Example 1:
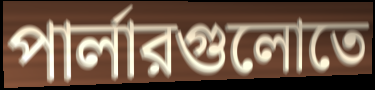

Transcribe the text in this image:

পার্লারগুলোতে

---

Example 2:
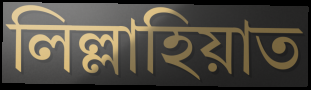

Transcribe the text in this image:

লিল্লাহিয়াত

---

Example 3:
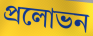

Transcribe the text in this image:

প্রলোভন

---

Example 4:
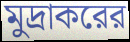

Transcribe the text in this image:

মুদ্রাকরের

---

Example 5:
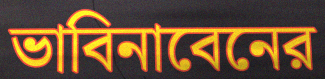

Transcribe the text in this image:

ভাবিনাবেনের